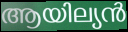
ആയില്യൻ